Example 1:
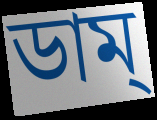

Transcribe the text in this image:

ডাম্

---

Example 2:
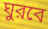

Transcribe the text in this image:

ঘুরবে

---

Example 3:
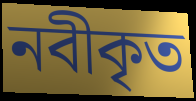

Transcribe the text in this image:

নবীকৃত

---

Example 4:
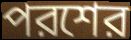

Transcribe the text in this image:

পরশের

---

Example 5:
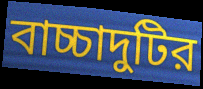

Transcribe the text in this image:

বাচ্চাদুটির